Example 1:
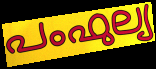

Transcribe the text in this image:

പംഫുല്യ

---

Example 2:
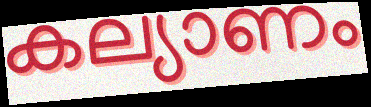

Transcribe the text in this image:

കല്യാണം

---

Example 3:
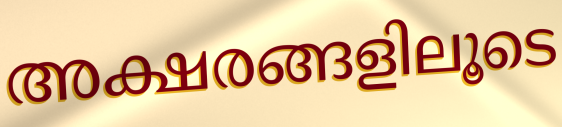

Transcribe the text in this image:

അക്ഷരങ്ങളിലൂടെ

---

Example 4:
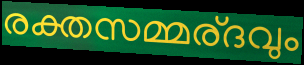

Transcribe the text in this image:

രക്തസമ്മര്ദവും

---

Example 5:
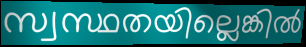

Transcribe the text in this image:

സ്വസ്ഥതയില്ലെങ്കിൽ